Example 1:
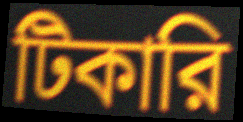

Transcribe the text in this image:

টিকারি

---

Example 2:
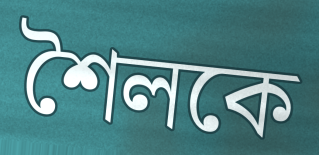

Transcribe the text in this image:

শৈলকে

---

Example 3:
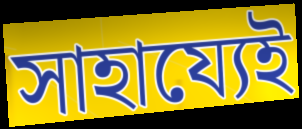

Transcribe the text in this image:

সাহায্যেই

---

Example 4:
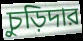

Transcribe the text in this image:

চুড়িদার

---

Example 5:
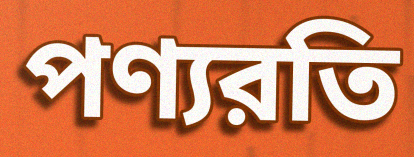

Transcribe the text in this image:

পণ্যরতি